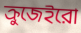
ক্রুজেইরো